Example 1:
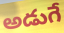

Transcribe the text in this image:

అడుగే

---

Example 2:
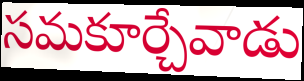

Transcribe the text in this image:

సమకూర్చేవాడు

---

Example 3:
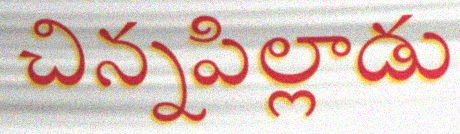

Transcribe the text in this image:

చిన్నపిల్లాడు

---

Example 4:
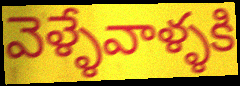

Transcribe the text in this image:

వెళ్ళేవాళ్ళకి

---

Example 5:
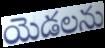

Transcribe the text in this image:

యెడలను